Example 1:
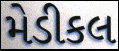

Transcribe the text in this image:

મેડીકલ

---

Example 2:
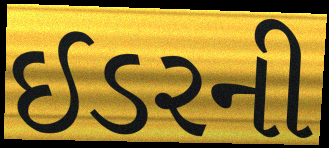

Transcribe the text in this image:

ઈડરની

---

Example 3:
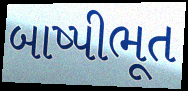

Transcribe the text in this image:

બાષ્પીભૂત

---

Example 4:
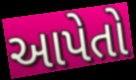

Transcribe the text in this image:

આપેતો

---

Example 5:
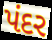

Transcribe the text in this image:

પંદર